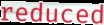
reduced